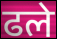
ढले